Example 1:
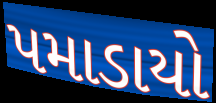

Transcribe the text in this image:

પમાડાયો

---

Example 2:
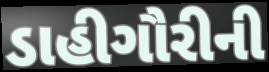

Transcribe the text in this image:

ડાહીગૌરીની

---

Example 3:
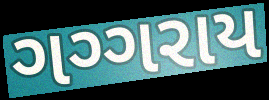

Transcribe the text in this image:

ગગ્ગરાય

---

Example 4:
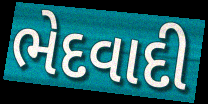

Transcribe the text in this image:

ભેદવાદી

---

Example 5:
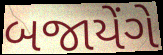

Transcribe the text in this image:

બજાયેંગે